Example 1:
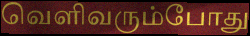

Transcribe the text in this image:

வெளிவரும்போது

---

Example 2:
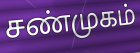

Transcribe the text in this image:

சண்முகம்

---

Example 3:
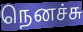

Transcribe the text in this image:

நெனச்சு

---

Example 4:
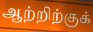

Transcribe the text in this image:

ஆற்றிற்குக்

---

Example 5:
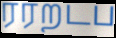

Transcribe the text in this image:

ரரறடப